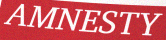
AMNESTY